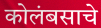
कोलंबसाचे